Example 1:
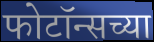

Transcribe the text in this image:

फोटॉन्सच्या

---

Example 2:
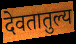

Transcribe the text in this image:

देवतातुल्य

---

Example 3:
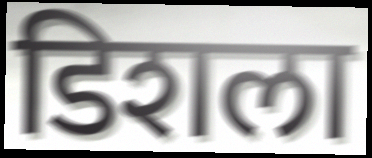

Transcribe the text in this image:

डिशला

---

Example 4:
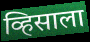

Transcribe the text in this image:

व्हिसाला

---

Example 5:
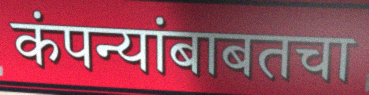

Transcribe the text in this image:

कंपन्यांबाबतचा